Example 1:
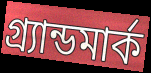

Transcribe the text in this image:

গ্র্যান্ডমার্ক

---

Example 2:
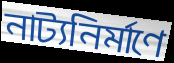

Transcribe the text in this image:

নাট্যনির্মাণে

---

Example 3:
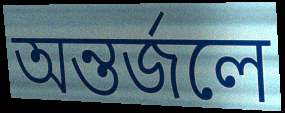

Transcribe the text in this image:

অন্তর্জলে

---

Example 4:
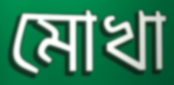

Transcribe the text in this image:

মোখা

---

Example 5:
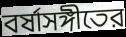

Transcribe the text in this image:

বর্ষাসঙ্গীতের